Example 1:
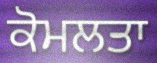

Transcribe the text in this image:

ਕੋਮਲਤਾ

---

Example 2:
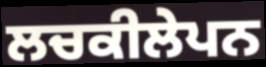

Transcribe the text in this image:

ਲਚਕੀਲੇਪਨ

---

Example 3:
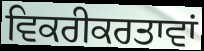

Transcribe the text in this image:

ਵਿਕਰੀਕਰਤਾਵਾਂ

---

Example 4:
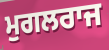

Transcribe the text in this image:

ਮੁਗਲਰਾਜ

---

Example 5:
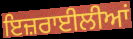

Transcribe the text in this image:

ਇਜ਼ਰਾਈਲੀਆਂ